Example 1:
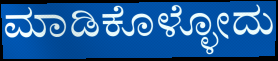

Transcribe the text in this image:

ಮಾಡಿಕೊಳ್ಳೋದು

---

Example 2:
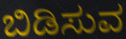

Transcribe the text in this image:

ಬಿಡಿಸುವ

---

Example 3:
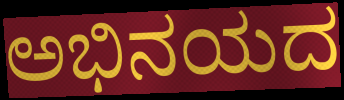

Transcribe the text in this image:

ಅಭಿನಯದ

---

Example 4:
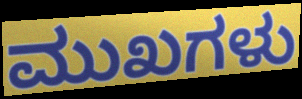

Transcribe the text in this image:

ಮುಖಗಳು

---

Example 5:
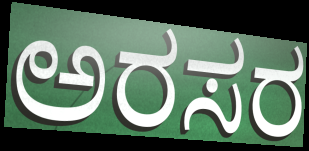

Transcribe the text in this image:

ಅರಸರ